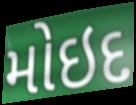
મોઇદ